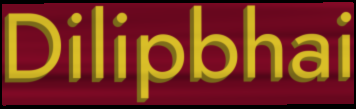
Dilipbhai